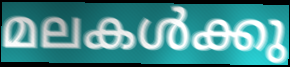
മലകൾക്കു